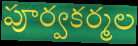
పూర్వకర్మల